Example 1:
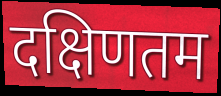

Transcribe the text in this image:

दक्षिणतम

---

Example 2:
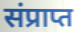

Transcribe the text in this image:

संप्राप्त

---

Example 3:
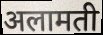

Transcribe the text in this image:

अलामती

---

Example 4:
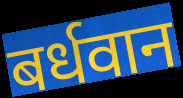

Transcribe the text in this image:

बर्धवान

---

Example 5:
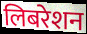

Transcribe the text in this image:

लिबरेशन